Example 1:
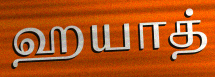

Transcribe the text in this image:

ஹயாத்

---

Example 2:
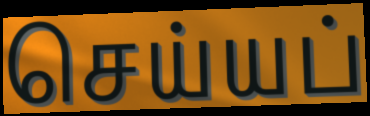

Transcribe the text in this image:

செய்யப்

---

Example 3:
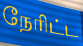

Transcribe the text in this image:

நேரிட்ட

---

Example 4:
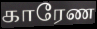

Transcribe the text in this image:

காரேண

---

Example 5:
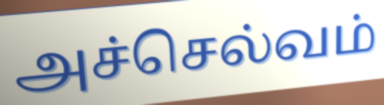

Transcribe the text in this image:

அச்செல்வம்